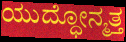
ಯುದ್ಧೋನ್ಮತ್ತ